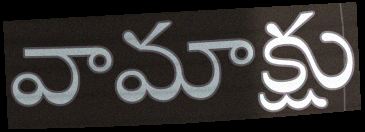
వామాక్షు